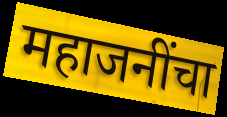
महाजनींचा